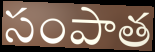
సంపాత